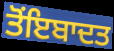
ਤੋਂਇਬਾਦਤ